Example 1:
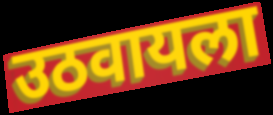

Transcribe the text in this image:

उठवायला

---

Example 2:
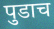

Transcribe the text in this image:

पुडाच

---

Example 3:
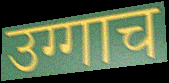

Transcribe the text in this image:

उग्गाच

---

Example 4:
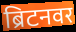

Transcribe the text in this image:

ब्रिटनवर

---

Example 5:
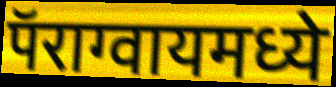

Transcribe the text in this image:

पॅराग्वायमध्ये